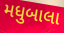
મધુબાલા